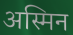
अस्मिन